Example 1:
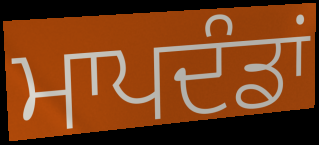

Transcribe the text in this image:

ਮਾਪਦੰਡਾਂ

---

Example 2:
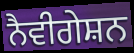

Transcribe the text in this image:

ਨੈਵੀਗੇਸ਼ਨ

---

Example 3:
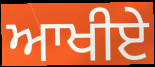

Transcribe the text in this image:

ਆਖੀਏ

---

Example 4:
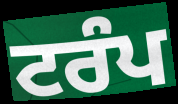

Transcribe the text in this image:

ਟਰੰਪ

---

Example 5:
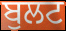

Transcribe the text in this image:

ਬੁਲਟ